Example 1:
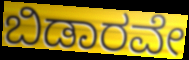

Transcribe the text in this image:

ಬಿಡಾರವೇ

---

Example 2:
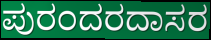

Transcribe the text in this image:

ಪುರಂದರದಾಸರ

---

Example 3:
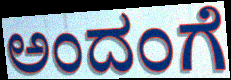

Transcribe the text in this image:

ಅಂದಂಗೆ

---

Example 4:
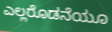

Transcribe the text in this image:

ಎಲ್ಲರೊಡನೆಯೂ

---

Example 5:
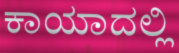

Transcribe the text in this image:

ಕಾಯಾದಲ್ಲಿ